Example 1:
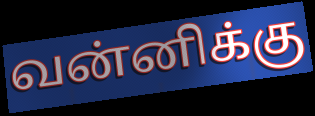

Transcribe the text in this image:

வன்னிக்கு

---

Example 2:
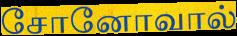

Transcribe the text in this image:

சோனோவால்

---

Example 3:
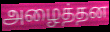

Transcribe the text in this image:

அழைத்தன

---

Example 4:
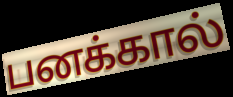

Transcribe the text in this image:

பனக்கால்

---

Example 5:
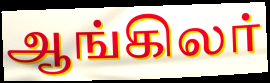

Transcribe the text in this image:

ஆங்கிலர்